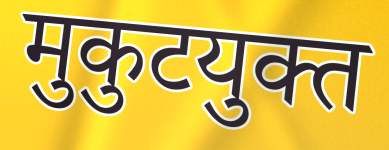
मुकुटयुक्त